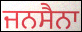
ਜਨਸੈਨਾ